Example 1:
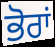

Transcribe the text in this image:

ਭੋਰਾਂ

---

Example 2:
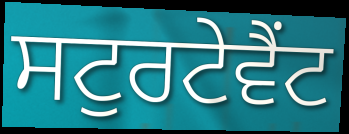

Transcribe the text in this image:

ਸਟੁਰਟੇਵੈਂਟ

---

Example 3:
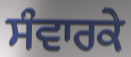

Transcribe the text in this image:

ਸੰਵਾਰਕੇ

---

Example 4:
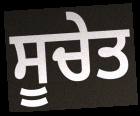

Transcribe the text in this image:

ਸੂਚੇਤ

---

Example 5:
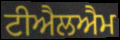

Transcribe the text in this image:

ਟੀਐਲਐਮ